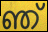
ഞ്